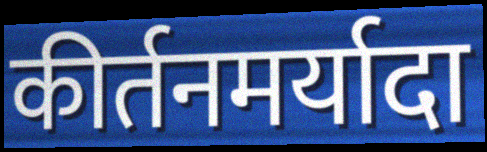
कीर्तनमर्यादा